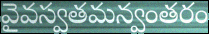
వైవస్వతమన్వంతరం